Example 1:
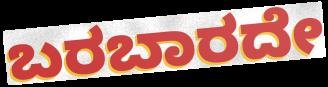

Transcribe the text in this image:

ಬರಬಾರದೇ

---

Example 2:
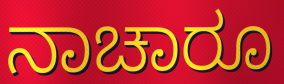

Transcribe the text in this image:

ನಾಚಾರೂ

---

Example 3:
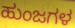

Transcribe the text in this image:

ಹುಂಜಗಳ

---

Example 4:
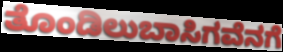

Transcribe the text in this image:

ತೊಂಡಿಲುಬಾಸಿಗವೆನಗೆ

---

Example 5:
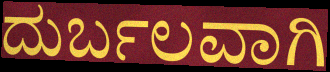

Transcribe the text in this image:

ದುರ್ಬಲವಾಗಿ